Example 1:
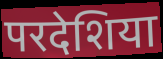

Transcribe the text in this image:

परदेशिया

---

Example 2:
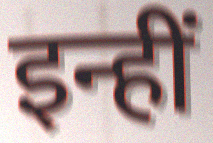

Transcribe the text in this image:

इन्‍हीं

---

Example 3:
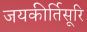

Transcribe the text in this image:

जयकीर्तिसूरि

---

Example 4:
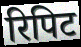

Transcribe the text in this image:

रिपिट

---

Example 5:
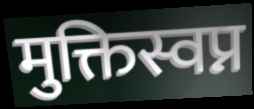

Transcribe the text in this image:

मुक्तिस्वप्न